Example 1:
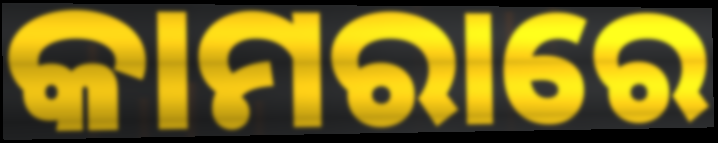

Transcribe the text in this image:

କାମରାରେ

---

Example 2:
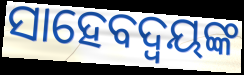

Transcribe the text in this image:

ସାହେବଦ୍ୱୟଙ୍କ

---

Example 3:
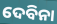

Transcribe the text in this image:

ଦେବିନା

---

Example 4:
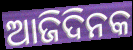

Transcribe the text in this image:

ଆଜିଦିନକ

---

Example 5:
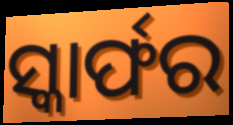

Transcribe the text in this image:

ସ୍କାର୍ଫର